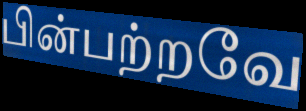
பின்பற்றவே